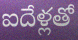
ఐదేళ్లతో